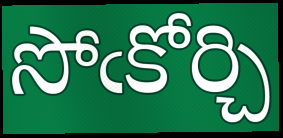
సోఁకోర్చి